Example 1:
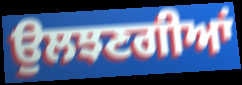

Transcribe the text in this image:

ਉਲਝਣਗੀਆਂ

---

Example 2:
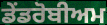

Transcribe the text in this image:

ਡੇਂਡਰੋਬੀਅਮ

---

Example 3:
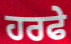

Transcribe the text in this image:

ਹਰਫੇ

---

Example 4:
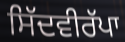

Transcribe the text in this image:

ਸਿੱਦਵੀਰੱਪਾ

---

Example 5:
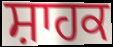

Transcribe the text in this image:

ਸ਼ਾਹਕ